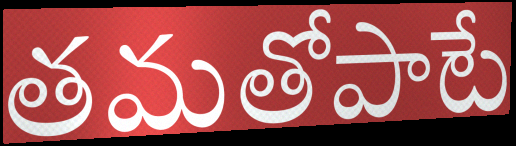
తమతోపాటే